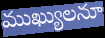
ముఖ్యులనూ